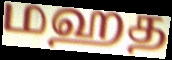
மஹத